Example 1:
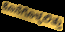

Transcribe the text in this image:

ಕೊನೆಗೊಳ್ಳಲಿತ್ತು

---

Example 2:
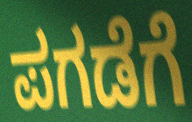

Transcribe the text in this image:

ಪಗಡೆಗೆ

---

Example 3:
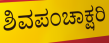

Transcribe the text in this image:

ಶಿವಪಂಚಾಕ್ಷರಿ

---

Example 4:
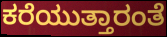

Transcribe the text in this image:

ಕರೆಯುತ್ತಾರಂತೆ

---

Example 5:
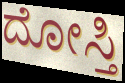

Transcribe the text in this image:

ದೋಸ್ತಿ